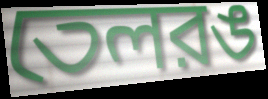
তেলরঙ